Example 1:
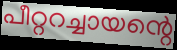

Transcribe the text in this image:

പീറ്ററച്ചായന്റെ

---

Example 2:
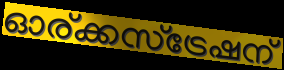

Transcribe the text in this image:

ഓര്ക്കസ്ട്രേഷന്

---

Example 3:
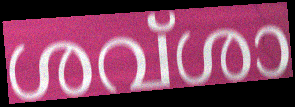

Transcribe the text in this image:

ശവ്ശാ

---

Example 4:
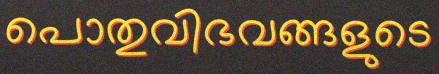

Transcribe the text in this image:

പൊതുവിഭവങ്ങളുടെ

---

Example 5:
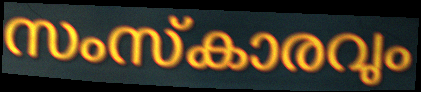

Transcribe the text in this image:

സംസ്‌കാരവും